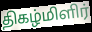
திகழ்மிளிர்